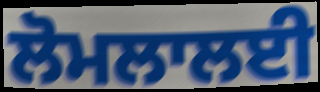
ਲੋਮਲਾਲਈ